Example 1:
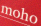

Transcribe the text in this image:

moho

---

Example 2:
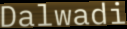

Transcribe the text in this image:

Dalwadi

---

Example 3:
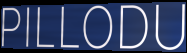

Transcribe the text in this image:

PILLODU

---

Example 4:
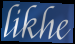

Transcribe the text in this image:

likhe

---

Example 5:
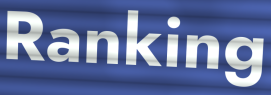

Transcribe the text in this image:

Ranking